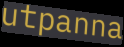
utpanna